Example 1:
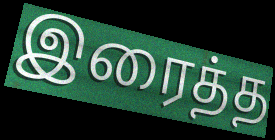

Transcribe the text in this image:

இரைத்த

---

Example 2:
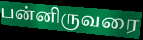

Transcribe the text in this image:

பன்னிருவரை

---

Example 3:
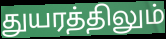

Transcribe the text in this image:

துயரத்திலும்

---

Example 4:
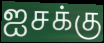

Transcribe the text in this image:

ஐசக்கு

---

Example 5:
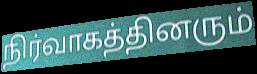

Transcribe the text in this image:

நிர்வாகத்தினரும்